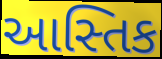
આસ્તિક